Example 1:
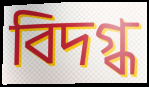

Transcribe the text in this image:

বিদগ্ধ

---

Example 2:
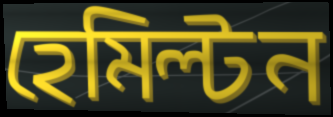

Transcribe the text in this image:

হেমিল্টন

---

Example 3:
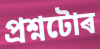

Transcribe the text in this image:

প্ৰশ্নটোৰ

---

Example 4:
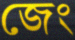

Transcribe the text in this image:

জেং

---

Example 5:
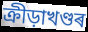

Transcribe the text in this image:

ক্ৰীড়াখণ্ডৰ